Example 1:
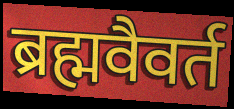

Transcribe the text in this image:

ब्रह्मवैवर्त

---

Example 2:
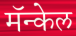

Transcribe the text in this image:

मॅन्केल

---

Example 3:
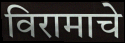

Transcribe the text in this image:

विरामाचे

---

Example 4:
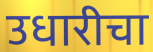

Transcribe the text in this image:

उधारीचा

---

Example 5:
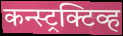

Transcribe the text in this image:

कन्स्ट्रक्टिव्ह